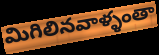
మిగిలినవాళ్ళంతా